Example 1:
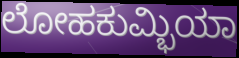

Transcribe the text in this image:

ಲೋಹಕುಮ್ಭಿಯಾ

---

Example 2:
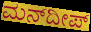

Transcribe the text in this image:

ಮನ್‍ದೀಪ್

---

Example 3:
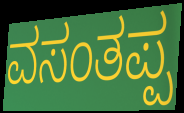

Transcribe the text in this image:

ವಸಂತಪ್ಪ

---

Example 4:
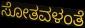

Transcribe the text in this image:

ಸೋತವಳಂತೆ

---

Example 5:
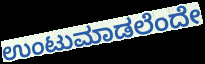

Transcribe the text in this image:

ಉಂಟುಮಾಡಲೆಂದೇ